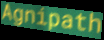
Agnipath